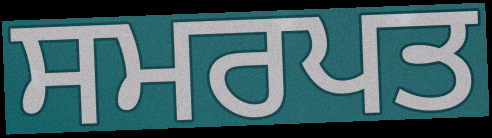
ਸਮਰਪਤ